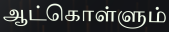
ஆட்கொள்ளும்